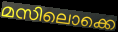
മസിലൊക്കെ